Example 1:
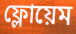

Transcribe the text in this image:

ফ্লোয়েম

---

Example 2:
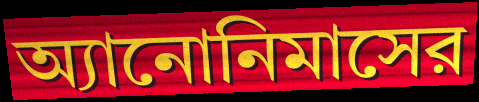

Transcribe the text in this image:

অ্যানোনিমাসের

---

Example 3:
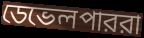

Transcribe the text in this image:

ডেভেলপাররা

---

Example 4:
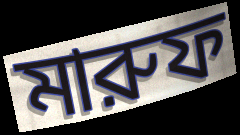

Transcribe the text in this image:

মারুফ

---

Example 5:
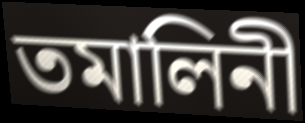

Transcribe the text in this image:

তমালিনী